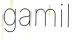
gamil